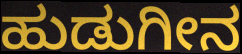
ಹುಡುಗೀನ